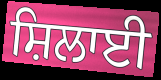
ਸ਼ਿਲਾਈ